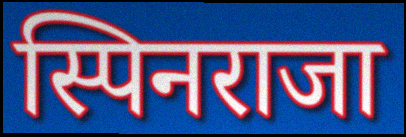
स्पिनराजा